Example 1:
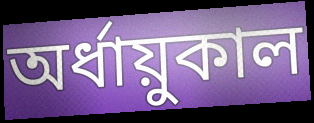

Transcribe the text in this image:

অর্ধায়ুকাল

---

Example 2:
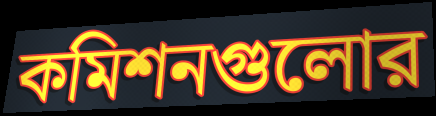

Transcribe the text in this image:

কমিশনগুলোর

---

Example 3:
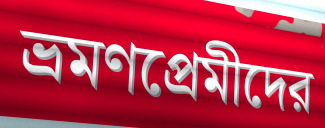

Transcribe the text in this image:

ভ্রমণপ্রেমীদের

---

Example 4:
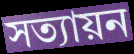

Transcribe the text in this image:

সত্যায়ন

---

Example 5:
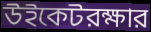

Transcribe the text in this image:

উইকেটরক্ষার